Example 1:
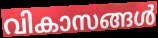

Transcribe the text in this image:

വികാസങ്ങൾ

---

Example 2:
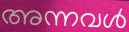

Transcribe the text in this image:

അന്നവൾ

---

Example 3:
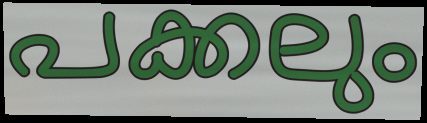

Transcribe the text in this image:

പക്കലും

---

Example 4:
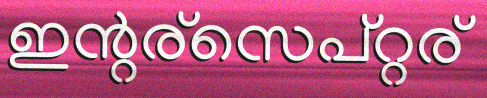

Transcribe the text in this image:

ഇന്റര്സെപ്റ്റര്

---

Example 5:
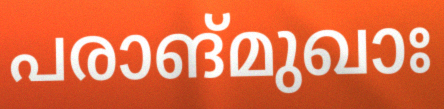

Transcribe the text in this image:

പരാങ്മുഖാഃ